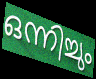
ഒന്നിച്ചും